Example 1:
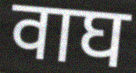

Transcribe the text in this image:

वाघ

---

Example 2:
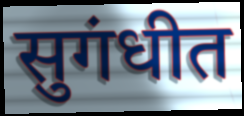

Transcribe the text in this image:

सुगंधीत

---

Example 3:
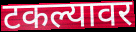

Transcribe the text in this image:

टकल्यावर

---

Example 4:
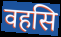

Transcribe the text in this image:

वहसि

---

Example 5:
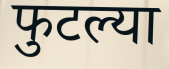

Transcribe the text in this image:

फुटल्या